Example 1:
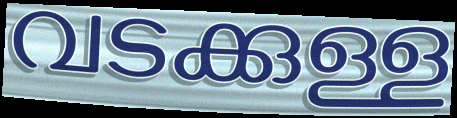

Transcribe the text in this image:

വടക്കുള്ള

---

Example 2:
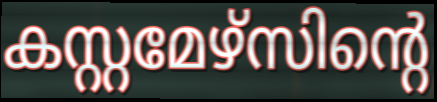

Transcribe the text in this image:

കസ്റ്റമേഴ്സിന്റെ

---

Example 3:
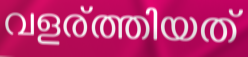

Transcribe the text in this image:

വളര്ത്തിയത്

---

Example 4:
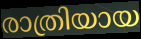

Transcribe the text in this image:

രാത്രിയായ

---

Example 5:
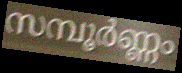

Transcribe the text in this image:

സമ്പൂർണ്ണം